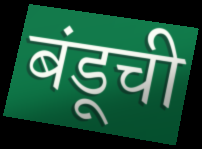
बंडूची